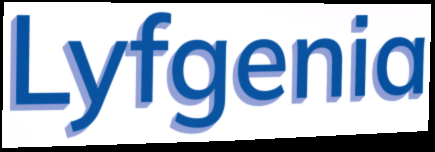
Lyfgenia